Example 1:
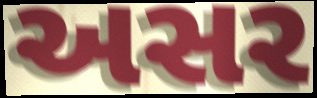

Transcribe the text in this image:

અસર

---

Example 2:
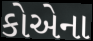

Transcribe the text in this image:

કોએના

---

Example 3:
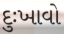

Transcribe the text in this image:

દુઃખાવો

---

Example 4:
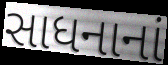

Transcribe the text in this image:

સાધનાનાં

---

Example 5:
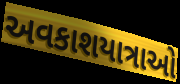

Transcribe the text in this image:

અવકાશયાત્રાઓ